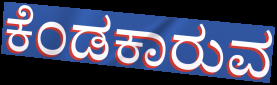
ಕೆಂಡಕಾರುವ